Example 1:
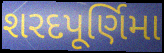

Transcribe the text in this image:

શરદપૂર્ણિમા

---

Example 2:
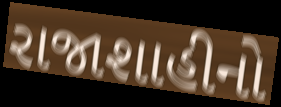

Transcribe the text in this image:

રાજાશાહીનો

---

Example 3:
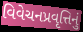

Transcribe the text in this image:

વિવેચનપ્રવૃત્તિનું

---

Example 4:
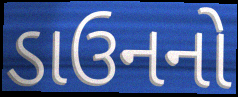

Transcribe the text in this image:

ડાઉનનો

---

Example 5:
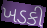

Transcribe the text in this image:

ખડકી